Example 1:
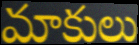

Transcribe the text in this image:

మాకులు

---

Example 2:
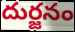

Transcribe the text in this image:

దుర్జనం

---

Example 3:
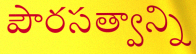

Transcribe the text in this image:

పౌరసత్వాన్ని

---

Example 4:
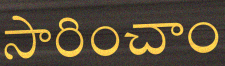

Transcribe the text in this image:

సారించాం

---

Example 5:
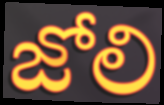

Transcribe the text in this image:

జోలి